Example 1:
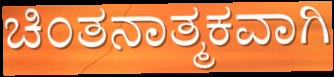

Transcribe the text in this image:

ಚಿಂತನಾತ್ಮಕವಾಗಿ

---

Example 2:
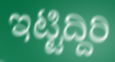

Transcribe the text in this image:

ಇಟ್ಟಿದ್ದಿರಿ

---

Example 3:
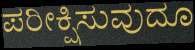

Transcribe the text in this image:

ಪರೀಕ್ಷಿಸುವುದೂ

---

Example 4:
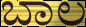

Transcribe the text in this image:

ಬಾಲ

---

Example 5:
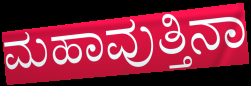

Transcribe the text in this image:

ಮಹಾವುತ್ತಿನಾ